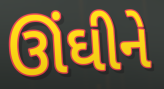
ઊંઘીને